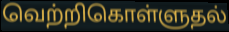
வெற்றிகொள்ளுதல்